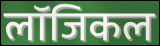
लॉजिकल